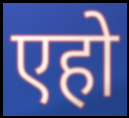
एहो